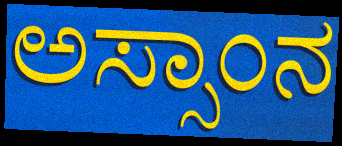
ಅಸ್ಸಾಂನ